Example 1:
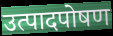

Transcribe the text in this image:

उत्पादपोषण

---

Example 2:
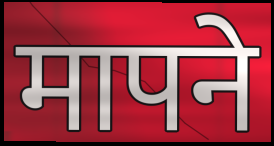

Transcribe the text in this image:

मापने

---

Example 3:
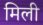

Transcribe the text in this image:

मिली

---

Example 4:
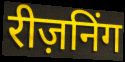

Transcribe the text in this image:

रीज़निंग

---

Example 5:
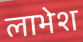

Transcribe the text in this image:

लाभेश